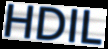
HDIL